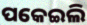
ପକେଇଲି